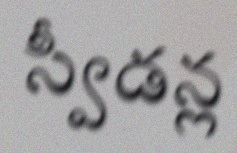
స్వీడన్ల